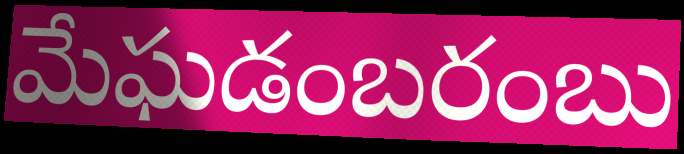
మేఘడంబరంబు